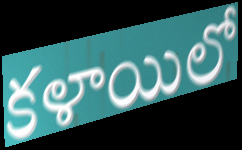
కళాయిలో